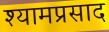
श्यामप्रसाद